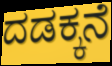
ದಡಕ್ಕನೆ